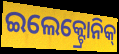
ଇଲେକ୍ଟ୍ରୋନିକ୍